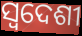
ସ୍ୱଦେଶୀ